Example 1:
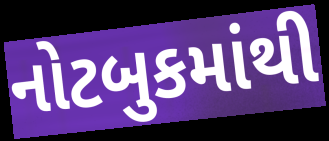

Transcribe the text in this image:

નોટબુકમાંથી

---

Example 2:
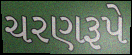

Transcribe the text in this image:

ચરણરૂપે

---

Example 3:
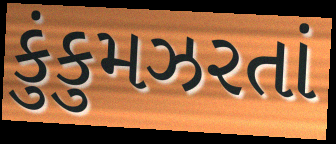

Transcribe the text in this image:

કુંકુમઝરતાં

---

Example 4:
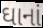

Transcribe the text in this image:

ઘાનાં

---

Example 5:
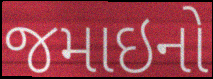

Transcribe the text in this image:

જમાઇનો